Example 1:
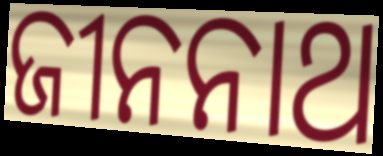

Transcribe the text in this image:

ଜୀନନାଥ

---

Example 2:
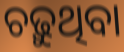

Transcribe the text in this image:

ଚଢ଼ୁଥିବା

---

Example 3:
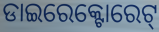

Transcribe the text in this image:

ଡାଇରେକ୍ଟୋରେଟ୍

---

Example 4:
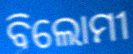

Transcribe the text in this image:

ବିଲୋମୀ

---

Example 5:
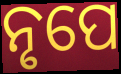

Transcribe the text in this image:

ନୃପେ